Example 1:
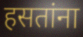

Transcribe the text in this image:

हसतांना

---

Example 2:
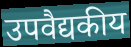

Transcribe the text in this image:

उपवैद्यकीय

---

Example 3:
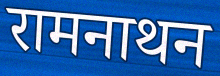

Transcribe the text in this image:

रामनाथन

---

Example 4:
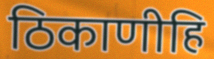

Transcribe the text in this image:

ठिकाणीहि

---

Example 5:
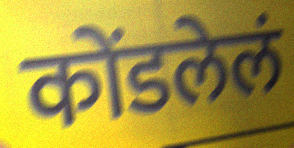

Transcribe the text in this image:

कोंडलेलं